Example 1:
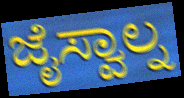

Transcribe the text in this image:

ಜೈಸ್ವಾಲ್ನ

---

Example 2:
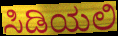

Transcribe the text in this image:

ಸಿಡಿಯಲಿ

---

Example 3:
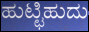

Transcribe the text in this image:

ಹುಟ್ಟಿಹುದು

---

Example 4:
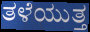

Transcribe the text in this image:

ತಳೆಯುತ್ತ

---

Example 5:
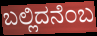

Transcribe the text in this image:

ಬಲ್ಲಿದನೆಂಬ